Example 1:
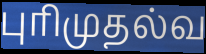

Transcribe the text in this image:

புரிமுதல்வ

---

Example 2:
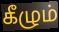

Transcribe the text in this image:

கீழும்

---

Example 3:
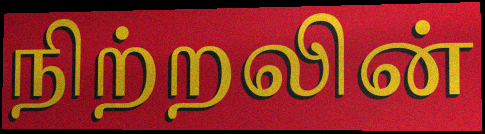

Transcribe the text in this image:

நிற்றலின்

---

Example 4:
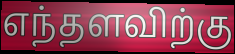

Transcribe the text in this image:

எந்தளவிற்கு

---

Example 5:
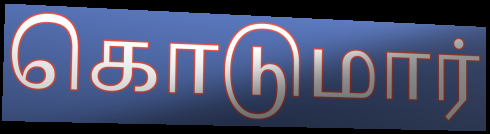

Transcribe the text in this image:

கொடுமார்